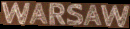
WARSAW